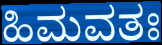
ಹಿಮವತಃ